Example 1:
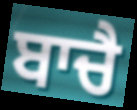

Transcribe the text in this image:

ਬਾਚੈ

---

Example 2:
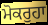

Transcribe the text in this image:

ਮੋਕਰੁਹਾ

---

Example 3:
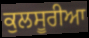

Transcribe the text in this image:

ਕੁਲਸੂਰੀਆ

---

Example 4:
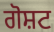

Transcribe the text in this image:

ਗੋਸ਼ਟ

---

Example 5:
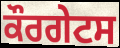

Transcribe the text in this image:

ਕੌਰਗੇਟਸ